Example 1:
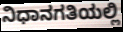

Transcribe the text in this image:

ನಿಧಾನಗತಿಯಲ್ಲಿ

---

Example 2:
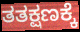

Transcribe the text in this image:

ತತಕ್ಷಣಕ್ಕೆ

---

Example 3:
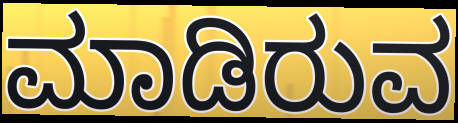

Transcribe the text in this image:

ಮಾಡಿರುವ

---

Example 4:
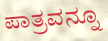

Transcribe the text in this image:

ಪಾತ್ರವನ್ನೂ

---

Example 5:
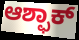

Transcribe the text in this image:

ಆಶ್ಫಾಕ್